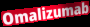
Omalizumab